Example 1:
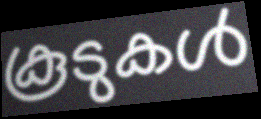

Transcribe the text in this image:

കൂടുകൾ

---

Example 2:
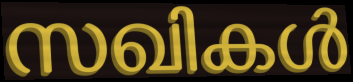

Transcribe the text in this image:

സഖികൾ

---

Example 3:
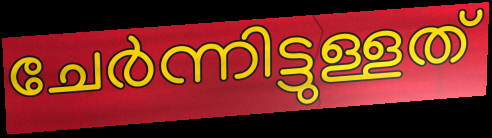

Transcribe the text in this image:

ചേർന്നിട്ടുള്ളത്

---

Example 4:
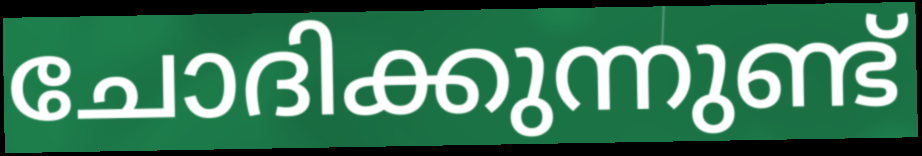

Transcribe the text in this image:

ചോദിക്കുന്നുണ്ട്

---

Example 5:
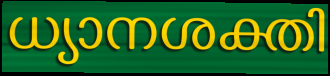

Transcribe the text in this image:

ധ്യാനശക്തി